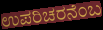
ಉಪರಿಚರನೆಂಬ